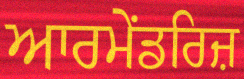
ਆਰਮੇਂਡਰਿਜ਼